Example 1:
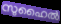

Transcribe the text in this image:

സുഹൈൽ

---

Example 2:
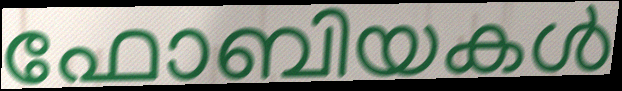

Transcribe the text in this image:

ഫോബിയകൾ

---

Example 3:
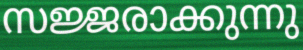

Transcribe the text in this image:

സജ്ജരാക്കുന്നു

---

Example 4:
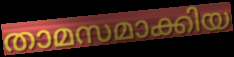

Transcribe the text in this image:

താമസമാക്കിയ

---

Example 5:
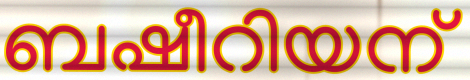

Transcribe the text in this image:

ബഷീറിയന്